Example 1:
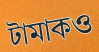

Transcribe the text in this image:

টামাকও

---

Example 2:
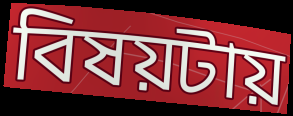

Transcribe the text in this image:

বিষয়টায়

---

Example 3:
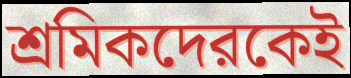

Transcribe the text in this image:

শ্রমিকদেরকেই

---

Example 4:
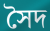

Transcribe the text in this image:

সৈদ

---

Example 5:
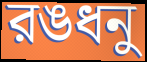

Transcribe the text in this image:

রঙধনু